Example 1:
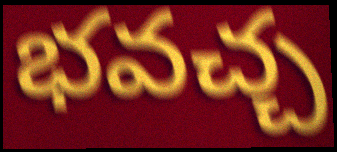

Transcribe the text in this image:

భవచ్చ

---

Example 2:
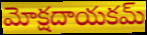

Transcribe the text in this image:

మోక్షదాయకమ్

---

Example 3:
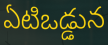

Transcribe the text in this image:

ఏటిఒడ్డున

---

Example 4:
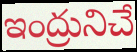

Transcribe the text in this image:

ఇంద్రునిచే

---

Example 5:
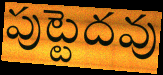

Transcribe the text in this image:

పుట్టెదవు